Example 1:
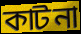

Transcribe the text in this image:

কাটনা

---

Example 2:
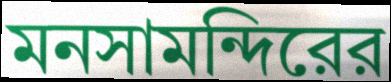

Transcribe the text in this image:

মনসামন্দিরের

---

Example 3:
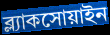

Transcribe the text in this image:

ব্ল্যাকসোয়াইন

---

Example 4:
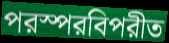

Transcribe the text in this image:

পরস্পরবিপরীত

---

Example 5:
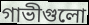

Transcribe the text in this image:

গাভীগুলো